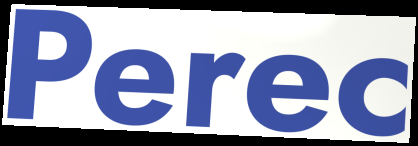
Perec